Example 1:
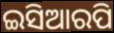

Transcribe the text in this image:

ଇସିଆରପି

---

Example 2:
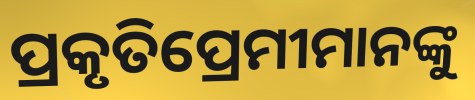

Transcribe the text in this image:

ପ୍ରକୃତିପ୍ରେମୀମାନଙ୍କୁ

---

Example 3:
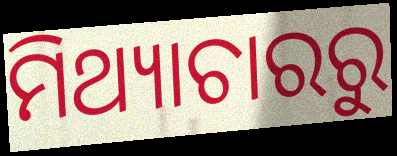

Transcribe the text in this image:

ମିଥ୍ୟାଚାରରୁ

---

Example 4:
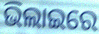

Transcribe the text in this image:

ଭିଲାଇରେ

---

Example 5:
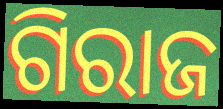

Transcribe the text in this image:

ଗିରାଜ